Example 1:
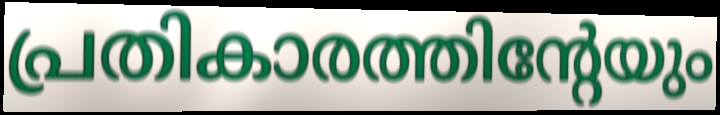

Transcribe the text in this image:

പ്രതികാരത്തിന്റേയും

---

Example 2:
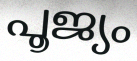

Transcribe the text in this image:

പൂജ്യം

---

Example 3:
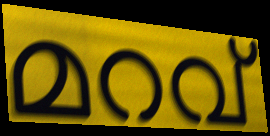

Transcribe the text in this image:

മറവ്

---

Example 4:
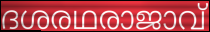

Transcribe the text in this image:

ദശരഥരാജാവ്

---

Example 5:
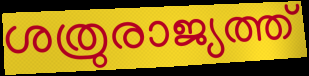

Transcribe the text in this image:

ശത്രുരാജ്യത്ത്